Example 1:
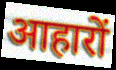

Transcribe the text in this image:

आहारों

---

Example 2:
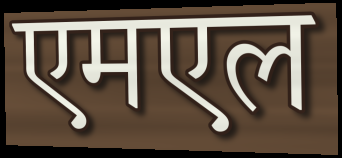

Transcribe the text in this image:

एमएल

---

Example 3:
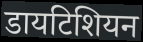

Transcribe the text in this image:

डायटिशियन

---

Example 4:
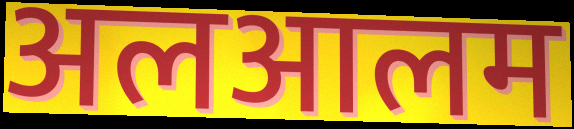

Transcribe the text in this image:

अलआलम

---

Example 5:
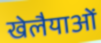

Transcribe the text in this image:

खेलैयाओं